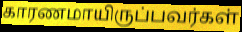
காரணமாயிருப்பவர்கள்